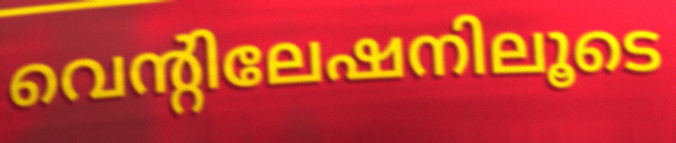
വെന്റിലേഷനിലൂടെ